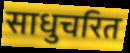
साधुचरित